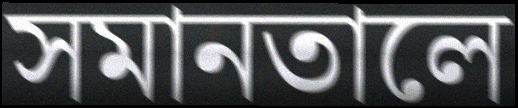
সমানতালে